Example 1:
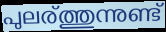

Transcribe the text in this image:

പുലര്ത്തുന്നുണ്ട്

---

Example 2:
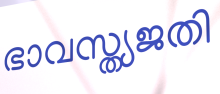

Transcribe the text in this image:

ഭാവസ്ത്യജതി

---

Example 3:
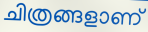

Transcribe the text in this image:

ചിത്രങ്ങളാണ്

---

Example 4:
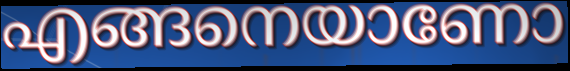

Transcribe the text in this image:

എങ്ങനെയാണോ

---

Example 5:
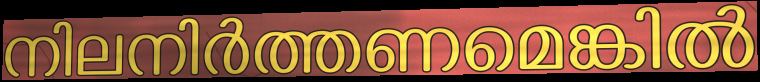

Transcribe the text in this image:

നിലനിർത്തണമെങ്കിൽ